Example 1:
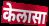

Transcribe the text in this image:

केलासा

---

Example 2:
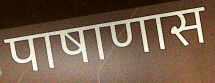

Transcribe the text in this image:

पाषाणास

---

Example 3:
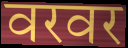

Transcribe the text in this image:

वरवर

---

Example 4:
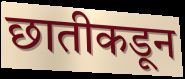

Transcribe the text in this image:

छातीकडून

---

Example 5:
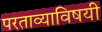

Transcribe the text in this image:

परताव्याविषयी